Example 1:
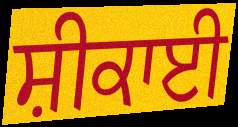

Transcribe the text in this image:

ਸ਼ੀਕਾਈ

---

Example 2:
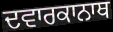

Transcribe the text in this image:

ਦਵਾਰਕਾਨਾਥ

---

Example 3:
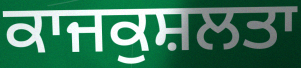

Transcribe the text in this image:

ਕਾਜਕੁਸ਼ਲਤਾ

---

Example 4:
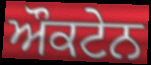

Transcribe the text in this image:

ਔਕਟੇਨ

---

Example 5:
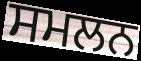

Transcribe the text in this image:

ਸਮਲਨ